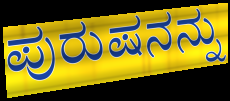
ಪುರುಷನನ್ನು